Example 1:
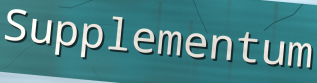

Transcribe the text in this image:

Supplementum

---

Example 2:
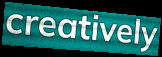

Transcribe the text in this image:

creatively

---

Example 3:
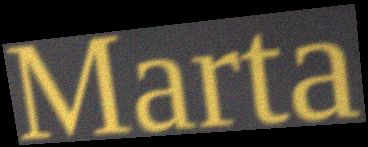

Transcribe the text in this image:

Marta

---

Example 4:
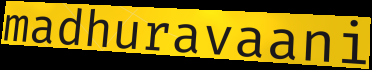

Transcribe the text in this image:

madhuravaani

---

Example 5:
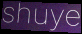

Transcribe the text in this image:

shuye